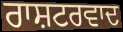
ਰਾਸ਼ਟਰਵਾਦ